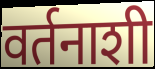
वर्तनाशी